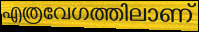
എത്രവേഗത്തിലാണ്